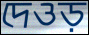
দেওড়